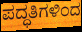
ಪದ್ಧತಿಗಳಿಂದ